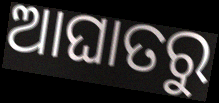
ଆଘାତରୁ